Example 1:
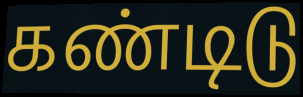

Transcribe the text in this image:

கண்டிடு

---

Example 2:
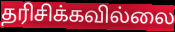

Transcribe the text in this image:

தரிசிக்கவில்லை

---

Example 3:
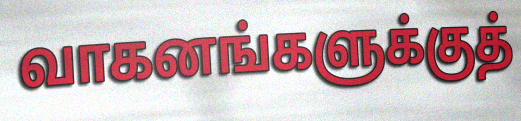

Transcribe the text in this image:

வாகனங்களுக்குத்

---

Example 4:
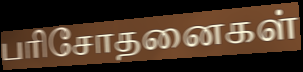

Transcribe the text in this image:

பரிசோதனைகள்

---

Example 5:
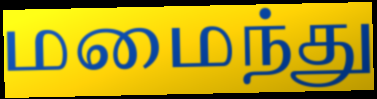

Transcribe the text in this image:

மமைந்து